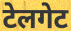
टेलगेट